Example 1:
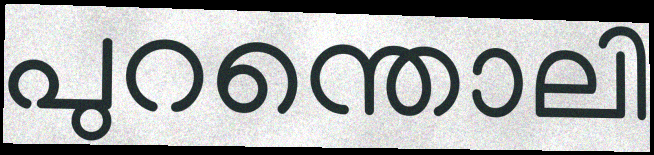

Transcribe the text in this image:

പുറന്തൊലി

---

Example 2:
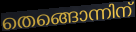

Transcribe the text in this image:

തെങ്ങൊന്നിന്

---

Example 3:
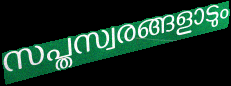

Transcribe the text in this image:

സപ്തസ്വരങ്ങളാടും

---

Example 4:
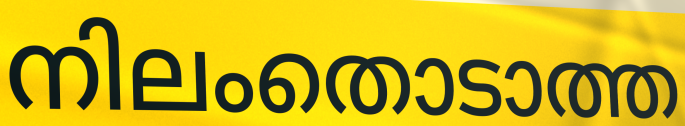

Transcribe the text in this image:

നിലംതൊടാത്ത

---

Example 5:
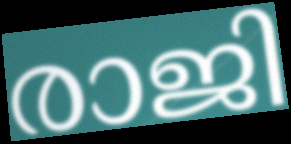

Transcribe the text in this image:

രാജി